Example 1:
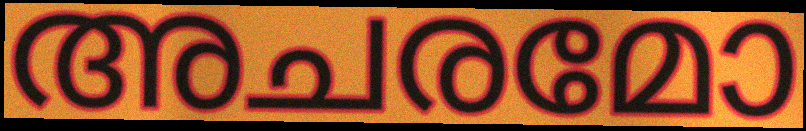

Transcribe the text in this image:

അചരമോ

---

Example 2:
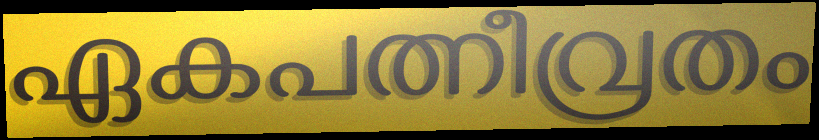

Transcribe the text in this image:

ഏകപത്നീവ്രതം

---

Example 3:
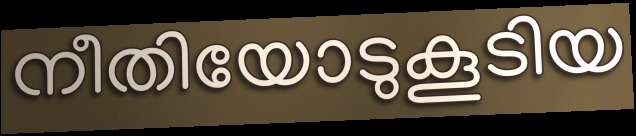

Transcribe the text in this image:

നീതിയോടുകൂടിയ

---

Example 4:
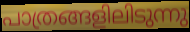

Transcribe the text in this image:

പാത്രങ്ങളിലിടുന്നു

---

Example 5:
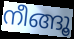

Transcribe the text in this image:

നീങ്ങൂ